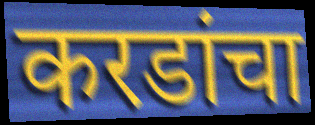
करडांचा